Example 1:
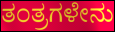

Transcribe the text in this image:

ತಂತ್ರಗಳೇನು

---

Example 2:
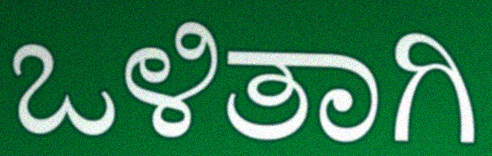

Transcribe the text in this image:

ಒಳಿತಾಗಿ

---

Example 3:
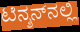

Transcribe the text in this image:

ಟೆನ್ಶನ್‌ನಲ್ಲಿ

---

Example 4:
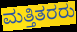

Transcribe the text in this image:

ಮತ್ತಿತರರು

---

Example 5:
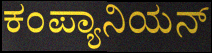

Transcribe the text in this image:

ಕಂಪ್ಯಾನಿಯನ್